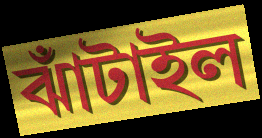
ঝাঁটাইল